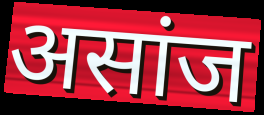
असांज